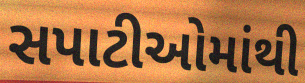
સપાટીઓમાંથી